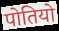
पोतियो